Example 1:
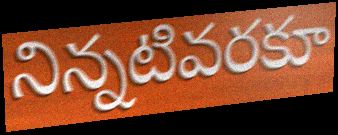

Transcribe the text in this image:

నిన్నటివరకూ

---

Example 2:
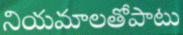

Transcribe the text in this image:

నియమాలతోపాటు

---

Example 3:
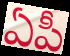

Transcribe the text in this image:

ఏపీ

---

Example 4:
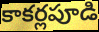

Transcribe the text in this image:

కాకర్లపూడి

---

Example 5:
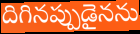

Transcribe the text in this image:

దిగినప్పుడైనను